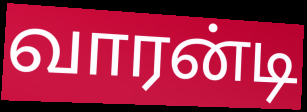
வாரன்டி